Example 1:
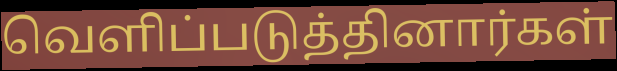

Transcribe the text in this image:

வெளிப்படுத்தினார்கள்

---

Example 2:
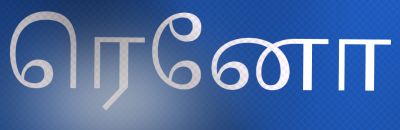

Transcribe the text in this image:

ரெனோ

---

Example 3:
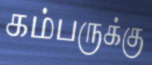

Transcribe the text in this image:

கம்பருக்கு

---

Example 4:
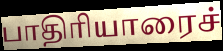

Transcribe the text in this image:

பாதிரியாரைச்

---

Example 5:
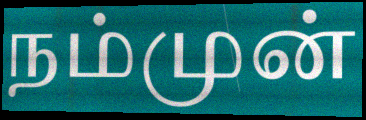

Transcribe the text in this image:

நம்முன்